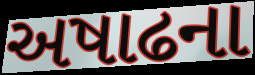
અષાઢના